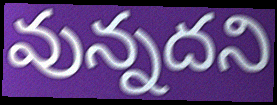
వున్నదని